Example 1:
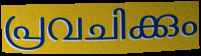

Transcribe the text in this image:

പ്രവചിക്കും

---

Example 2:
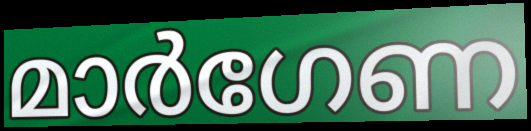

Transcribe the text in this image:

മാർഗേണ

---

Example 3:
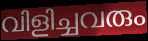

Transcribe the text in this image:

വിളിച്ചവരും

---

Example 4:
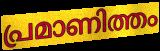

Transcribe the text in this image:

പ്രമാണിത്തം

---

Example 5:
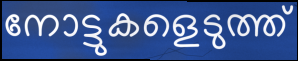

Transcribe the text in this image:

നോട്ടുകളെടുത്ത്